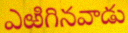
ఎఱిగినవాడు